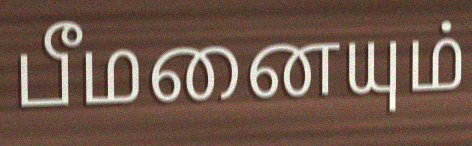
பீமனையும்